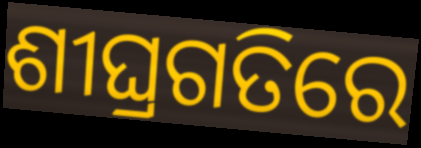
ଶୀଘ୍ରଗତିରେ